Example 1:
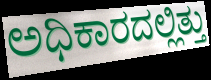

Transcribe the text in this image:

ಅಧಿಕಾರದಲ್ಲಿತ್ತು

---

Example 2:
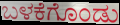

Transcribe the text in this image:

ಬಳಕೆಗೊಂಡು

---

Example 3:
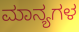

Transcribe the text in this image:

ಮಾನ್ಯಗಳ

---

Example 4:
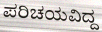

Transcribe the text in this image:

ಪರಿಚಯವಿದ್ದ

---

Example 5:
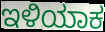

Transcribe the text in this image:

ಇಳಿಯಾಕ